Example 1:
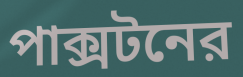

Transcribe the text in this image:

পাক্সটনের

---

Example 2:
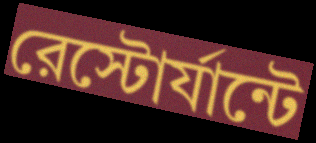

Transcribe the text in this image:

রেস্টোর্যান্টে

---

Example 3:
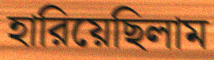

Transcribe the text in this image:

হারিয়েছিলাম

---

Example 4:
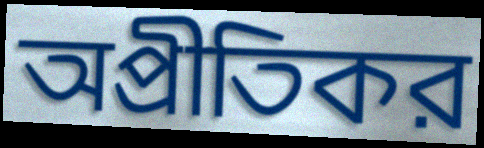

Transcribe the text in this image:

অপ্রীতিকর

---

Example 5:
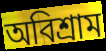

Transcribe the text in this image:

অবিশ্রাম